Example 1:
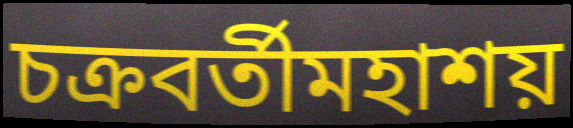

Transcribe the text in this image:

চক্রবর্তীমহাশয়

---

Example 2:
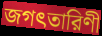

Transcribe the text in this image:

জগৎতারিণী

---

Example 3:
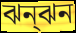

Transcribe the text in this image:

ঝন্ঝন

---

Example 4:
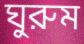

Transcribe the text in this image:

ঘুরুম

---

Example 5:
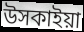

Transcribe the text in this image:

উসকাইয়া